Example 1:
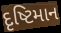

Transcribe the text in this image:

દૃષ્ટિમાન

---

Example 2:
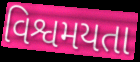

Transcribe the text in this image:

વિશ્વમયતા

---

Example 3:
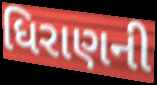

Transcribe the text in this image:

ધિરાણની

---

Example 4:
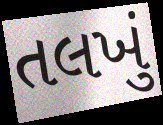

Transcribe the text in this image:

તલખું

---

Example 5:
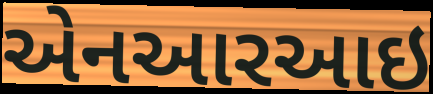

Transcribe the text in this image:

એનઆરઆઇ